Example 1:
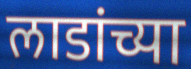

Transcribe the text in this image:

लाडांच्या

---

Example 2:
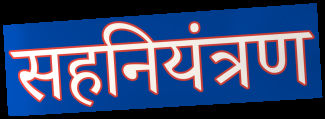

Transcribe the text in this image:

सहनियंत्रण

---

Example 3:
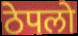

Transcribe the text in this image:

ठेपलो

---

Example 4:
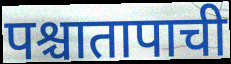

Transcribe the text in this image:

पश्चातापाची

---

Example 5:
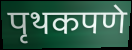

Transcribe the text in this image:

पृथकपणे